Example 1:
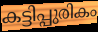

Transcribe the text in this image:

കട്ടിപ്പുരികം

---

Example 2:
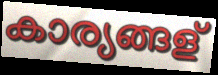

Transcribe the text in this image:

കാര്യങ്ങള്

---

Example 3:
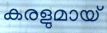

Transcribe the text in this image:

കരളുമായ്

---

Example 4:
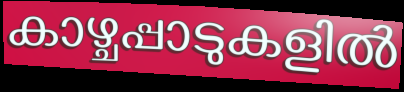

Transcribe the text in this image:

കാഴ്ചപ്പാടുകളിൽ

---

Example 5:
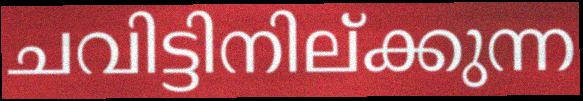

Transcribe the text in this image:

ചവിട്ടിനില്ക്കുന്ന